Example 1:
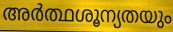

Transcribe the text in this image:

അർത്ഥശൂന്യതയും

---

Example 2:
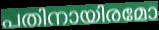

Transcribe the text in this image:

പതിനായിരമോ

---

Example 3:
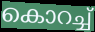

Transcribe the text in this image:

കൊറച്ച്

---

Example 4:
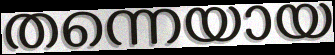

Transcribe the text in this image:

തന്നെയായ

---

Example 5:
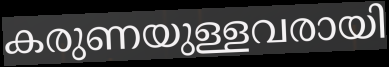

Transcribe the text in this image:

കരുണയുള്ളവരായി